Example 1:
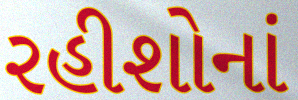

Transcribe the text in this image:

રહીશોનાં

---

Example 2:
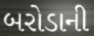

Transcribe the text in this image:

બરોડાની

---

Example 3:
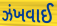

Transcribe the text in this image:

ઝંખવાઈ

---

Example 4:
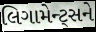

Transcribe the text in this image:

લિગામેન્ટ્સને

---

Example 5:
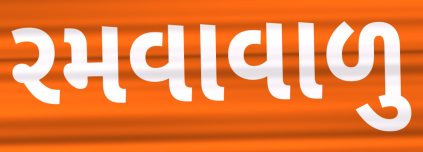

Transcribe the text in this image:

રમવાવાળુ